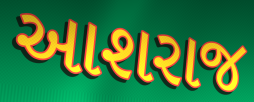
આશરાજ